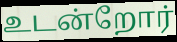
உடன்றோர்